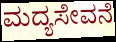
ಮದ್ಯಸೇವನೆ